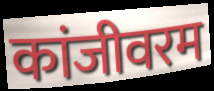
कांजीवरम